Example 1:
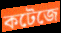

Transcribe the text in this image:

কটেজে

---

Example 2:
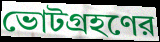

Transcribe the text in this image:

ভোটগ্রহণের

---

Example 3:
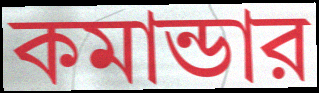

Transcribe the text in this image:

কমান্ডার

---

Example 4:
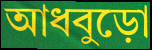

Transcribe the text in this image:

আধবুড়ো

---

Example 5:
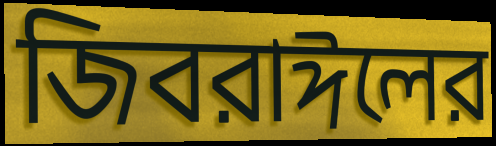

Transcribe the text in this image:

জিবরাঈলের